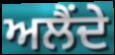
ਅਲੈਂਦੇ